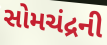
સોમચંદ્રની